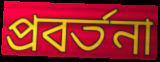
প্রবর্তনা